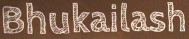
Bhukailash